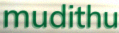
mudithu